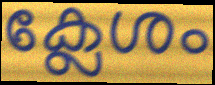
ക്ലേശം